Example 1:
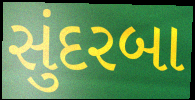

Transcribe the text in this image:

સુંદરબા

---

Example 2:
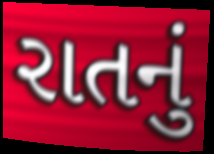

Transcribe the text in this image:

રાતનું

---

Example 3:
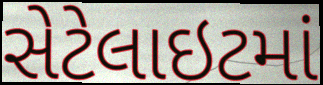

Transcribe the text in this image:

સેટેલાઇટમાં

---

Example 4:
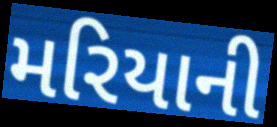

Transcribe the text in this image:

મરિયાની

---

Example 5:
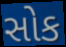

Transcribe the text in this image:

સોક